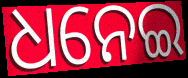
ଧନେଇ